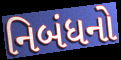
નિબંધનો